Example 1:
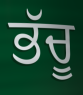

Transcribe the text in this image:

ਭੱਚੂ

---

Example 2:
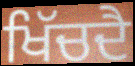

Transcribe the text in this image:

ਖਿੱਚਦੈ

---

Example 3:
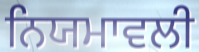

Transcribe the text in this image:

ਨਿਯਮਾਵਲੀ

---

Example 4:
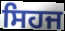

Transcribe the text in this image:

ਸਿਹਜ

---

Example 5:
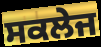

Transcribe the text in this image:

ਸਕਲੇਜ